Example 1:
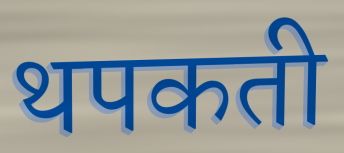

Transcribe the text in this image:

थपकती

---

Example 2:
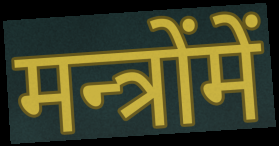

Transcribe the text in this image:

मन्त्रोंमें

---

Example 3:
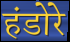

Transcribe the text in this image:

हंडोरे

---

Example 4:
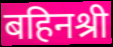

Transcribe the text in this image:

बहिनश्री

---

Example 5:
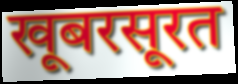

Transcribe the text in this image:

खूबरसूरत